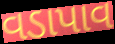
વડાપાવ